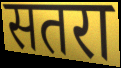
सतरा